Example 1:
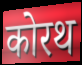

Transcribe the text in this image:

कोरथ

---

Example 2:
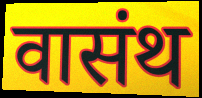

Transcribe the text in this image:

वासंथ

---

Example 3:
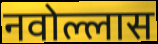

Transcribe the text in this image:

नवोल्लास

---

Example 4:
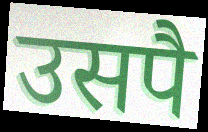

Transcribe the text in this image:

उसपै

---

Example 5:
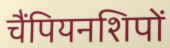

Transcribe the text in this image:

चैंपियनशिपों